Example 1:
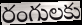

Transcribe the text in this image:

రంగులకు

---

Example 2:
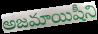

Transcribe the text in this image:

అజమాయిషీని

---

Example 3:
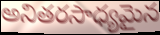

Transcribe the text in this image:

అనితరసాధ్యమైన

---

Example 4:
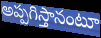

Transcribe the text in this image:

అప్పగిస్తానంటూ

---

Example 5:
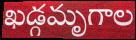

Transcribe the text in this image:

ఖడ్గమృగాల